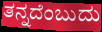
ತನ್ನದೆಂಬುದು